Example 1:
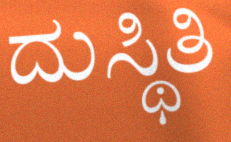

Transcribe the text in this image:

ದುಸ್ಥಿತಿ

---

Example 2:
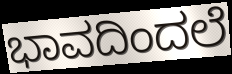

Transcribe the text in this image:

ಭಾವದಿಂದಲೆ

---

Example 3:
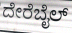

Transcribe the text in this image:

ದೇರೆಬೈಲ್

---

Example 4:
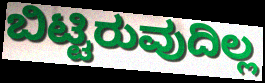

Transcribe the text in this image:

ಬಿಟ್ಟಿರುವುದಿಲ್ಲ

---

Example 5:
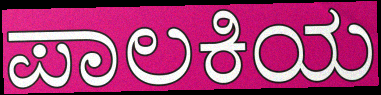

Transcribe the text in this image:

ಪಾಲಕಿಯ